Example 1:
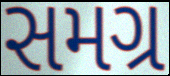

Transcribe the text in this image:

સમગ્ર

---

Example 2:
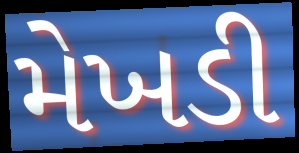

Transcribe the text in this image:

મેખડી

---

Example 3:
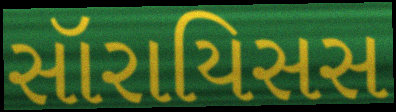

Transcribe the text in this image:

સૉરાયિસસ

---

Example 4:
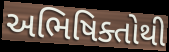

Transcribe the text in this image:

અભિષિક્તોથી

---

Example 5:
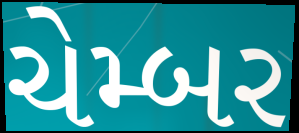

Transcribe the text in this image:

ચેમ્બર